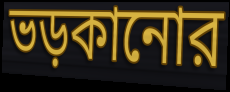
ভড়কানোর